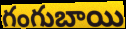
గంగుబాయి